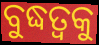
ବୁଦ୍ଧତ୍ଵକୁ